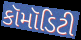
કૉમૉડિટી